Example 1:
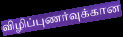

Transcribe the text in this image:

விழிப்புணர்வுக்கான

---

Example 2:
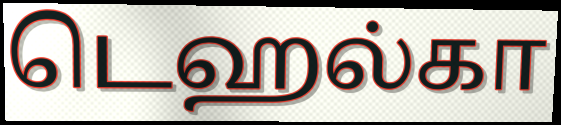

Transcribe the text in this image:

டெஹல்கா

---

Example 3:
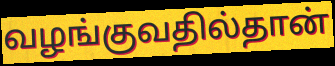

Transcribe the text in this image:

வழங்குவதில்தான்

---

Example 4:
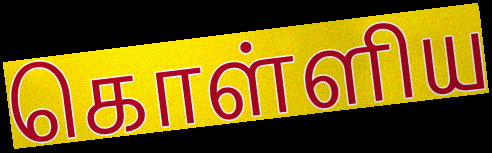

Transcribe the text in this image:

கொள்ளிய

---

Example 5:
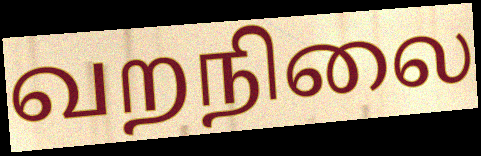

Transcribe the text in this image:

வறநிலை